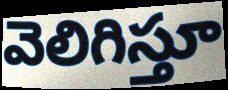
వెలిగిస్తూ